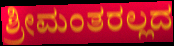
ಶ್ರೀಮಂತರಲ್ಲದ